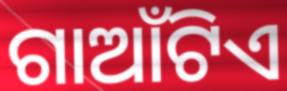
ଗାଆଁଟିଏ